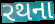
રથના